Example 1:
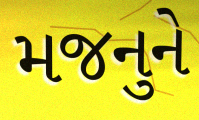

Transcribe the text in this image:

મજનુને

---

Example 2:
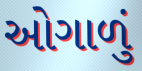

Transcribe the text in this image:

ઓગાળું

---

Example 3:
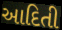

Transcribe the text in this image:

આદિતી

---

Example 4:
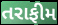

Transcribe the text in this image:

તરાફીમ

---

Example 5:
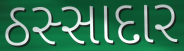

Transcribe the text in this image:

ઠસ્સાદાર